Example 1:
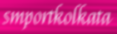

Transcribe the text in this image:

smportkolkata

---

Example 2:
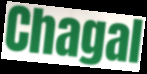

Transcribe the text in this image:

Chagal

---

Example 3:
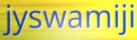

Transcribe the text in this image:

jyswamiji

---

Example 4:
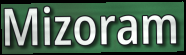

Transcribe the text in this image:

Mizoram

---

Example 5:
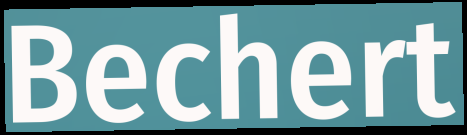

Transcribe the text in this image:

Bechert